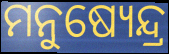
ମନୁଷ୍ୟେନ୍ଦ୍ର